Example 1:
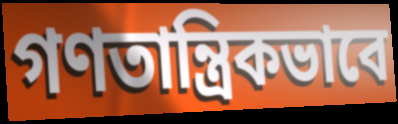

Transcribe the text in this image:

গণতান্ত্রিকভাবে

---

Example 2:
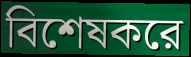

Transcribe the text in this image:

বিশেষকরে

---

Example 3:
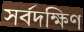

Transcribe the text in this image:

সর্বদক্ষিণ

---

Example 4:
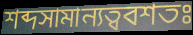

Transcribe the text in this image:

শব্দসামান্যত্ববশতঃ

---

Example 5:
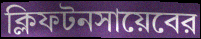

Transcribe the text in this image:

ক্লিফটনসায়েবের